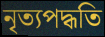
নৃত্যপদ্ধতি